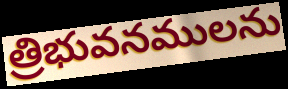
త్రిభువనములను